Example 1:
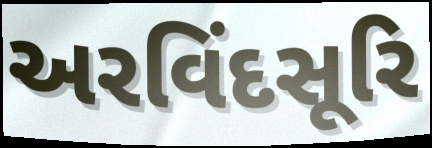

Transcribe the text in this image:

અરવિંદસૂરિ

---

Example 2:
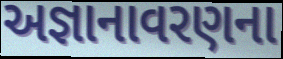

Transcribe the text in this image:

અજ્ઞાનાવરણના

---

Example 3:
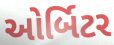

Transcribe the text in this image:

ઓર્બિટર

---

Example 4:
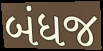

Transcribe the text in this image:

બંધજ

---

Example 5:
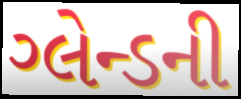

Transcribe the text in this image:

ગ્લેન્ડની